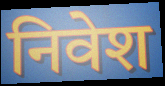
निवेश